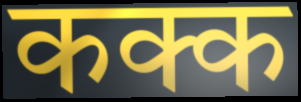
कक्क